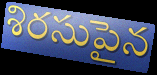
శిరసుపైన